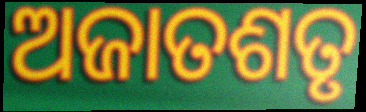
ଅଜାତଶତୃ